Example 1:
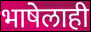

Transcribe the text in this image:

भाषेलाही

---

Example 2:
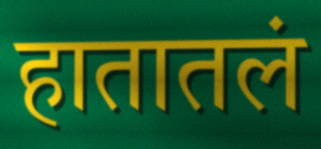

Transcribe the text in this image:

हातातलं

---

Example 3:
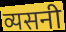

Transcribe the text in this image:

व्यसनी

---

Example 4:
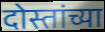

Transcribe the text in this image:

दोस्तांच्या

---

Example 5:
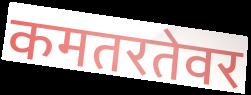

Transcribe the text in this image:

कमतरतेवर